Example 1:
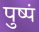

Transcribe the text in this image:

पुष्पं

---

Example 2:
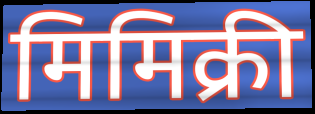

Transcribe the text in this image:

मिमिक्री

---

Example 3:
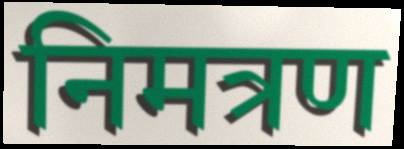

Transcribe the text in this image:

निमत्रण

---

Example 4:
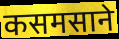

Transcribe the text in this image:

कसमसाने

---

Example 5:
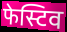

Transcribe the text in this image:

फेस्टिव